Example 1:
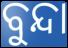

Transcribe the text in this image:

ବୁନ୍ଦା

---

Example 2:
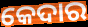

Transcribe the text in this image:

କେଦାର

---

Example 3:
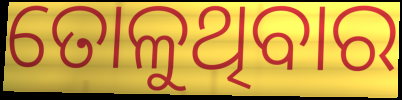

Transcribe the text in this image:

ତୋଳୁଥିବାର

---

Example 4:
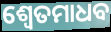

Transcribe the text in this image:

ଶ୍ୱେତମାଧବ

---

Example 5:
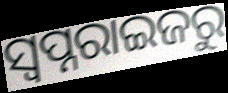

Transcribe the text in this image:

ସ୍ୱପ୍ନରାଇଜରୁ